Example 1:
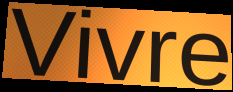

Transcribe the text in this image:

Vivre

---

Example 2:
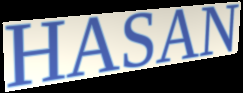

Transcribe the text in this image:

HASAN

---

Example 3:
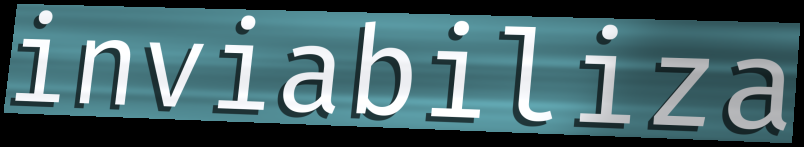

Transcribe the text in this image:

inviabiliza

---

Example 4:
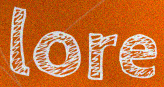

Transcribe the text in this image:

lore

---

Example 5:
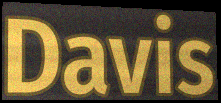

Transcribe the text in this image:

Davis